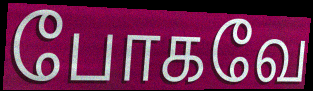
போகவே